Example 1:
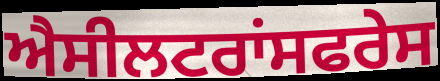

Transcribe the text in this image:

ਐਸੀਲਟਰਾਂਸਫਰੇਸ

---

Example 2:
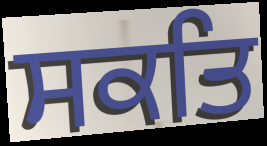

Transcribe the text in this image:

ਸਕਤਿ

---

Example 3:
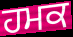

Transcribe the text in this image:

ਹਮਕ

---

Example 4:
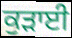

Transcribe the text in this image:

ਕੁੜਾਈ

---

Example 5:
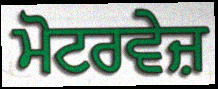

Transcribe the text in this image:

ਮੋਟਰਵੇਜ਼